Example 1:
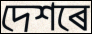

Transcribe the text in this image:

দেশৰে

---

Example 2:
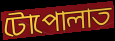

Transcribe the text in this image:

টোপোলাত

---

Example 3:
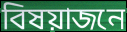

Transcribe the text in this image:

বিষয়াজনে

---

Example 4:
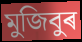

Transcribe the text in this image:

মুজিবুৰ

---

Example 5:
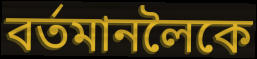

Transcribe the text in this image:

বৰ্তমানলৈকে